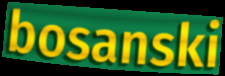
bosanski